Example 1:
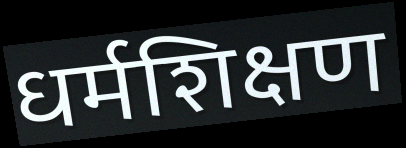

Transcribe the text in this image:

धर्मशिक्षण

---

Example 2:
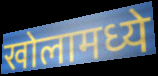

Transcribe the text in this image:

खोलामध्ये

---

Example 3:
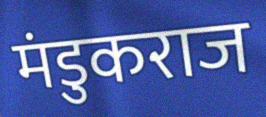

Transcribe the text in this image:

मंडुकराज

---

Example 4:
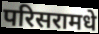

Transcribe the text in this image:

परिसरामधे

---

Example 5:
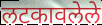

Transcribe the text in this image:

लटकावलेले